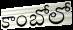
కాంబోలో